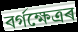
বৰ্গক্ষেত্ৰৰ